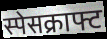
स्पेसक्राफ्ट